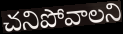
చనిపోవాలని